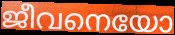
ജീവനെയോ